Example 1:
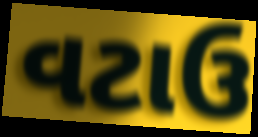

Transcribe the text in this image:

વટાઉ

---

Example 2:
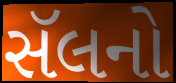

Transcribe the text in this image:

સૅલનો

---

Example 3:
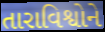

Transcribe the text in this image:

તારાવિશ્વોને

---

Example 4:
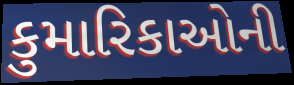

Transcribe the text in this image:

કુમારિકાઓની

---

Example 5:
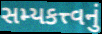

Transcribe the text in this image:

સમ્યકત્ત્વનું